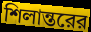
শিলান্তরের